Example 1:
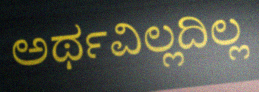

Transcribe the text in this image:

ಅರ್ಥವಿಲ್ಲದಿಲ್ಲ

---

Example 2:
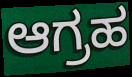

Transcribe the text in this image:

ಆಗ್ರಹ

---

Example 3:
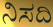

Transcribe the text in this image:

ನಿಸದಿ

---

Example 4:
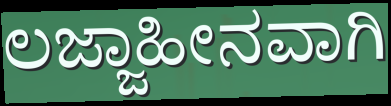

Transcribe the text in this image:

ಲಜ್ಜಾಹೀನವಾಗಿ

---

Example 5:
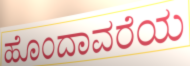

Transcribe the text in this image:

ಹೊಂದಾವರೆಯ